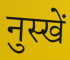
नुस्खें